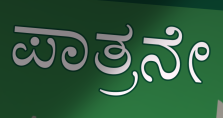
ಪಾತ್ರನೇ